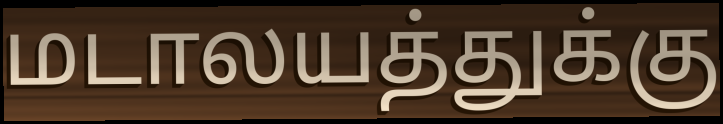
மடாலயத்துக்கு